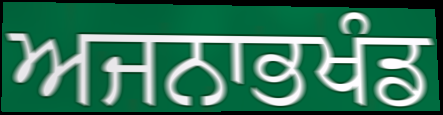
ਅਜਨਾਭਖੰਡ